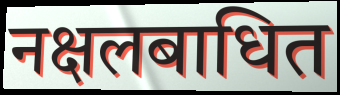
नक्षलबाधित